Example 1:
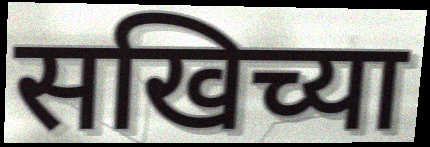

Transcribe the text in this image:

सखिच्या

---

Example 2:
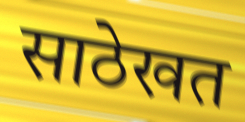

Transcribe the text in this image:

साठेखत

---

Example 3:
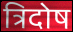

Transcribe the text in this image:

त्रिदोष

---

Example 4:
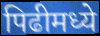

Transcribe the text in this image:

पिढीमध्ये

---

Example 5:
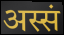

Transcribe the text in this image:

अस्सं